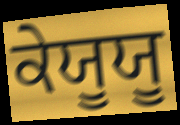
ਕੇਯੂਯੂ